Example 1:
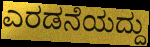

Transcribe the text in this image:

ಎರಡನೆಯದ್ದು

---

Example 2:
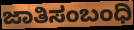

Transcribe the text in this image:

ಜಾತಿಸಂಬಂಧಿ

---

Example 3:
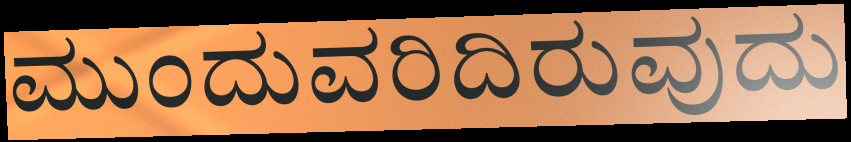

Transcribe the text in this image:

ಮುಂದುವರಿದಿರುವುದು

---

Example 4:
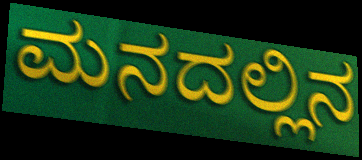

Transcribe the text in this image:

ಮನದಲ್ಲಿನ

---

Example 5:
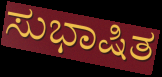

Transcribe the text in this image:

ಸುಭಾಷಿತ